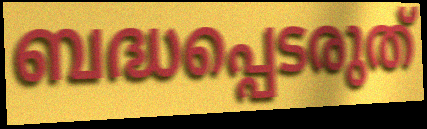
ബദ്ധപ്പെടരുത്